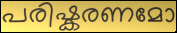
പരിഷ്കരണമോ